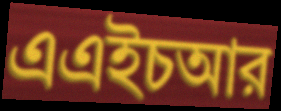
এএইচআর